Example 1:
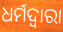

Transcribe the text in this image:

ଧର୍ମଦ୍ୱାରା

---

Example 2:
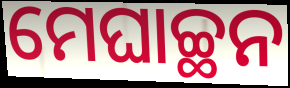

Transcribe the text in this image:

ମେଘାଚ୍ଛନ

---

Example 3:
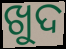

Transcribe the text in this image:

ଖୁଦ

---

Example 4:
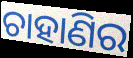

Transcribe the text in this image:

ଚାହାଣିର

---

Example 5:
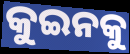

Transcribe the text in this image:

କୁଇନକୁ